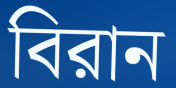
বিরান